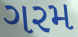
ગરમ